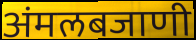
अंमलबजाणी